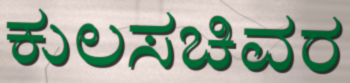
ಕುಲಸಚಿವರ